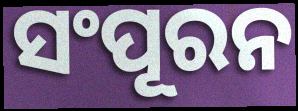
ସଂପୂରନ